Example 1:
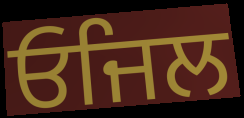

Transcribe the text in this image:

ਓਜਿਲ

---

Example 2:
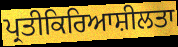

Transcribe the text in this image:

ਪ੍ਰਤੀਕਿਰਿਆਸ਼ੀਲਤਾ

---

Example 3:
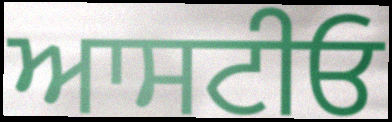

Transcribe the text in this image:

ਆਸਟੀਓ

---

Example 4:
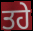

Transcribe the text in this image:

ਤਹੇ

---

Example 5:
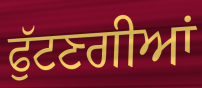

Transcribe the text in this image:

ਫੁੱਟਣਗੀਆਂ